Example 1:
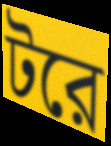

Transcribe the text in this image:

টরে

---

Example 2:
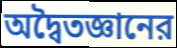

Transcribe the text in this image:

অদ্বৈতজ্ঞানের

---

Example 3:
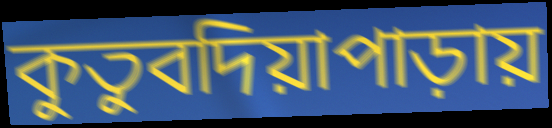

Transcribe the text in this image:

কুতুবদিয়াপাড়ায়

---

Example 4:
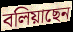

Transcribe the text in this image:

বলিয়াছেন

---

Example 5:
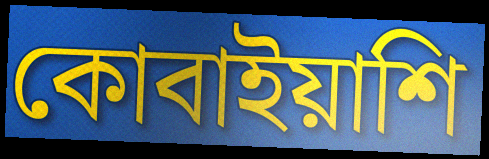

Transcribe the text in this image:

কোবাইয়াশি